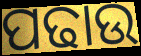
ପଢାଉ